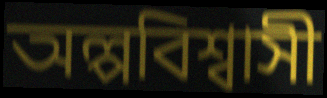
অল্পবিশ্বাসী